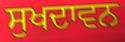
ਸੁਖਦਾਵਨ